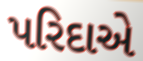
પરિદાએ